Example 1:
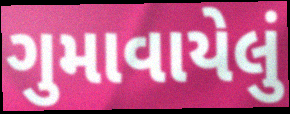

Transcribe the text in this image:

ગુમાવાયેલું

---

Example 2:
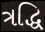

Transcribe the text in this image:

ત્રદ્ધિ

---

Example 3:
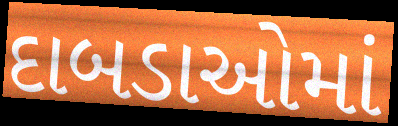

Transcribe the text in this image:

દાબડાઓમાં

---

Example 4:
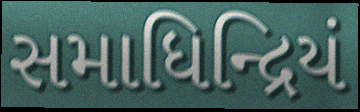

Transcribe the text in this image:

સમાધિન્દ્રિયં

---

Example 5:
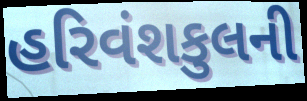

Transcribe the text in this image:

હરિવંશકુલની